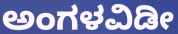
ಅಂಗಳವಿಡೀ